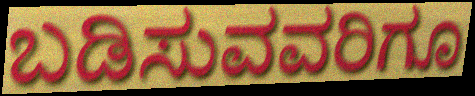
ಬಡಿಸುವವರಿಗೂ